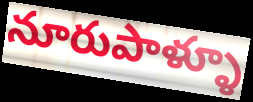
నూరుపాళ్ళూ